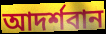
আদর্শবান